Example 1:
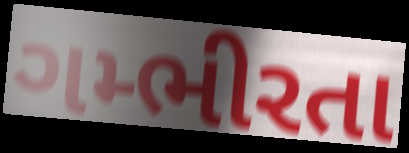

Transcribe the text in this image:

ગમ્ભીરતા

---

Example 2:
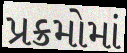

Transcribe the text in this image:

પ્રક્રમોમાં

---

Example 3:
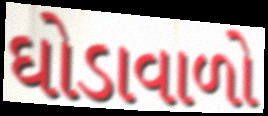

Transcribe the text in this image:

ઘોડાવાળો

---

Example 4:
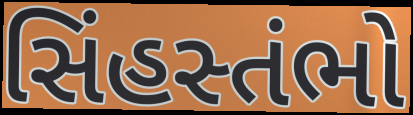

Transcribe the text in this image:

સિંહસ્તંભો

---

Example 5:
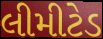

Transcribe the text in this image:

લીમીટેડ